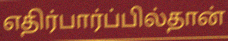
எதிர்பார்ப்பில்தான்